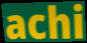
achi